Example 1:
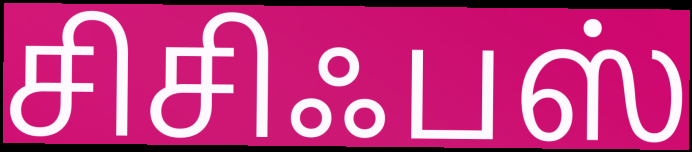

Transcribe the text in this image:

சிசிஃபஸ்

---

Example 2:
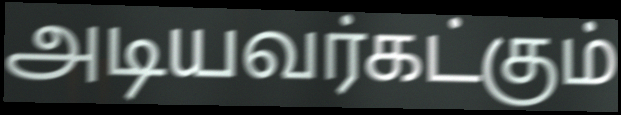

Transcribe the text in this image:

அடியவர்கட்கும்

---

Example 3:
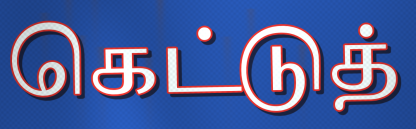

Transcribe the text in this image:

கெட்டுத்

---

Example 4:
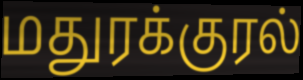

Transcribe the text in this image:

மதுரக்குரல்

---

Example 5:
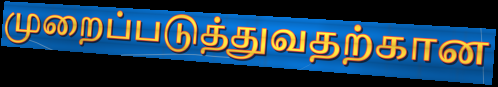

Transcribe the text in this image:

முறைப்படுத்துவதற்கான